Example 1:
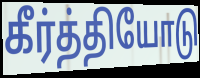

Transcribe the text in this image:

கீர்த்தியோடு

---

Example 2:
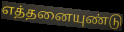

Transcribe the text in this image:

எத்தனையுண்டு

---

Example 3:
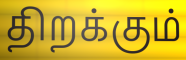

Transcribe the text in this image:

திறக்கும்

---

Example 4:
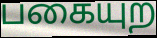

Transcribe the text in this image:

பகையுற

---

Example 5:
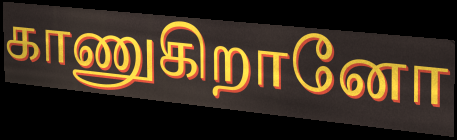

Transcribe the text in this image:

காணுகிறானோ